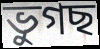
ভুগছ